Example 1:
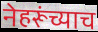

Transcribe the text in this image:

नेहरूंच्याच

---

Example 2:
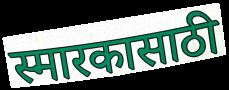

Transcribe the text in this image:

स्मारकासाठी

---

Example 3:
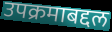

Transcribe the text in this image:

उपक्रमाबद्दल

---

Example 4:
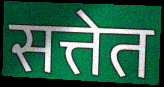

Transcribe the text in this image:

सत्तेत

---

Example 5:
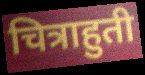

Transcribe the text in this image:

चित्राहुती